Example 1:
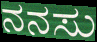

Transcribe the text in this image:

ನನಸು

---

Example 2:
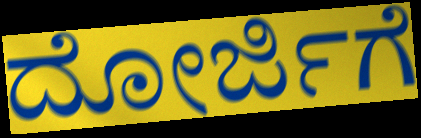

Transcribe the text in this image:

ದೋರ್ಜಿಗೆ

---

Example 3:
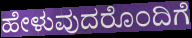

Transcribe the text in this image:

ಹೇಳುವುದರೊಂದಿಗೆ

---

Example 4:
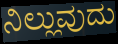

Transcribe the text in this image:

ನಿಲ್ಲುವುದು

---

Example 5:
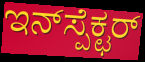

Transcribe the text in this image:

ಇನ್‌ಸ್ಪೆಕ್ಟರ್